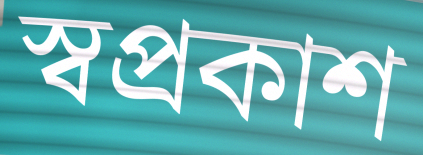
স্বপ্ৰকাশ